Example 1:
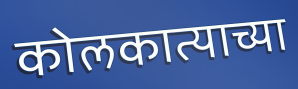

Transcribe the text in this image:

कोलकात्याच्या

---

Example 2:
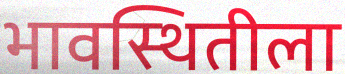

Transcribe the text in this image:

भावस्थितीला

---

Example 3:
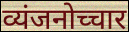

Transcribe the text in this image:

व्यंजनोच्चार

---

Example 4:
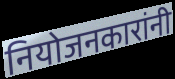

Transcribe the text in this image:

नियोजनकारांनी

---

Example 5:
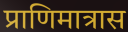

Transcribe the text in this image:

प्राणिमात्रास